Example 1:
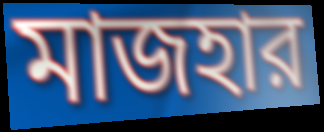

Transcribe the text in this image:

মাজহার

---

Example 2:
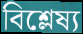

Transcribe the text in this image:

বিশ্লেষ্য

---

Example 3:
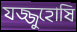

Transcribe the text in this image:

যজ্জুহোষি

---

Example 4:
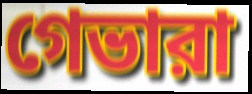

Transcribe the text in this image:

গেভারা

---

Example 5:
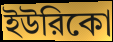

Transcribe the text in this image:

ইউরিকো